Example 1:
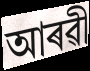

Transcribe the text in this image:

আৰৱী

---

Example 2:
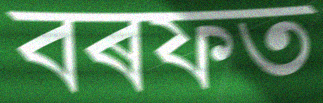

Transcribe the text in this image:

বৰফত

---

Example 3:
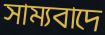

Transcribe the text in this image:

সাম্যবাদে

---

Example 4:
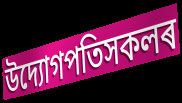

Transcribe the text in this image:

উদ্যোগপতিসকলৰ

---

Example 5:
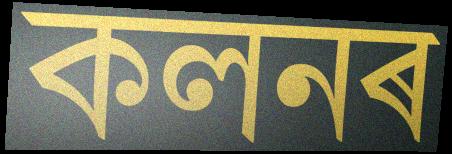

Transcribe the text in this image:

কলনৰ